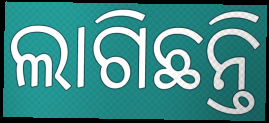
ଲାଗିଛନ୍ତି